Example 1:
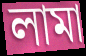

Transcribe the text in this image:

লামা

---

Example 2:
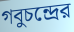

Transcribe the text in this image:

গবুচন্দ্রের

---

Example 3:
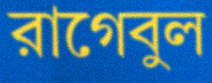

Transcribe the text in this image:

রাগেবুল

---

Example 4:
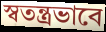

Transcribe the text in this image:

স্বতন্ত্রভাবে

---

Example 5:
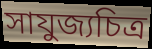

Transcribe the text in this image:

সাযুজ্যচিত্র